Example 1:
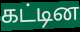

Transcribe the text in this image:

கட்டின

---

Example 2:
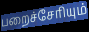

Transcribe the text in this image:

பறைச்சேரியும்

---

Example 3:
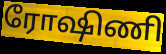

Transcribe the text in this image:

ரோஷிணி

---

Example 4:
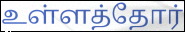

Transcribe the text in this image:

உள்ளத்தோர்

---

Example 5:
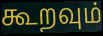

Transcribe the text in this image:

கூறவும்